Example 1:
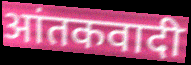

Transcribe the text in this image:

आंतकवादी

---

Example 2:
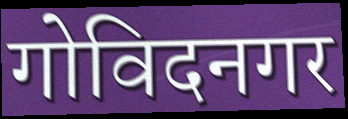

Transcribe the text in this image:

गोविदनगर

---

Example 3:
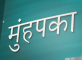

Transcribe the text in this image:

मुंहपका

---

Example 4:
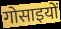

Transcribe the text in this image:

गोसाइयों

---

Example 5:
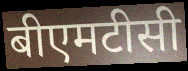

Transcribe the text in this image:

बीएमटीसी